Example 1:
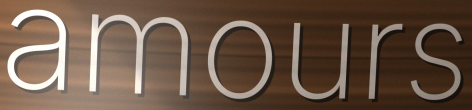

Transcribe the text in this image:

amours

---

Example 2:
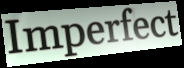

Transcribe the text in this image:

Imperfect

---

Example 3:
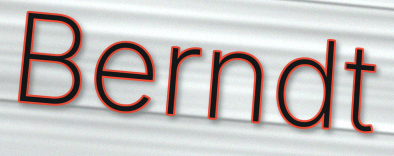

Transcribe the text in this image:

Berndt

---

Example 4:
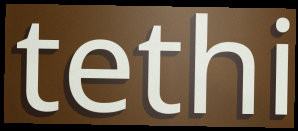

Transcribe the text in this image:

tethi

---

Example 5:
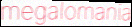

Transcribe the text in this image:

megalomania